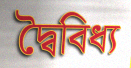
দ্বৈবিধ্য